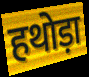
हथोड़ा